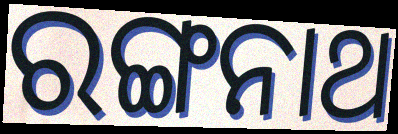
ରଙ୍ଗନାଥ